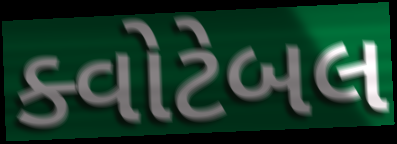
ક્વોટેબલ